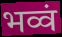
भव्वं